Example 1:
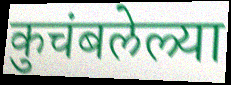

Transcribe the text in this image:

कुचंबलेल्या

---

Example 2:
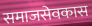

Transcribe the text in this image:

समाजसेवकास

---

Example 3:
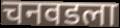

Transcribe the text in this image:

चनवडला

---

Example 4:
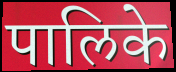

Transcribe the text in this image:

पालिके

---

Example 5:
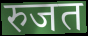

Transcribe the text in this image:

रुजत